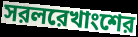
সরলরেখাংশের